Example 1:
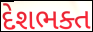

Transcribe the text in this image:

દેશભક્ત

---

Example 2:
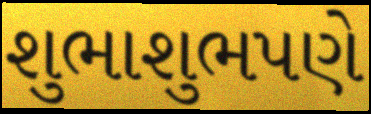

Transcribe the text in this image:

શુભાશુભપણે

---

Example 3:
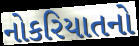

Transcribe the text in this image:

નોકરિયાતનો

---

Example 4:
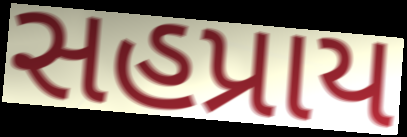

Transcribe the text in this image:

સહપ્રાય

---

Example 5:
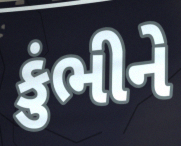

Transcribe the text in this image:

કુંભીને